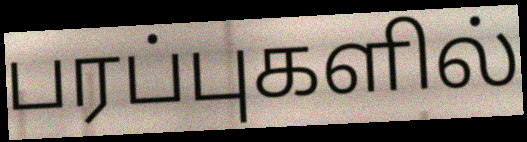
பரப்புகளில்